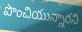
పొంచియున్నారని